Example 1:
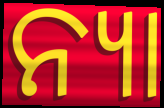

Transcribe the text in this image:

ନ୍ୟା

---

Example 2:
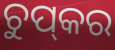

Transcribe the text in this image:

ଚୁପ୍‌କର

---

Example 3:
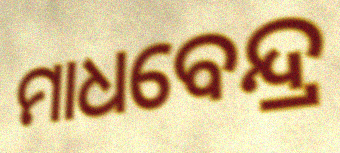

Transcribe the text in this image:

ମାଧବେନ୍ଦ୍ର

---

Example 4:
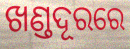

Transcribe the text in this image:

ଖଣ୍ଡଦୂରରେ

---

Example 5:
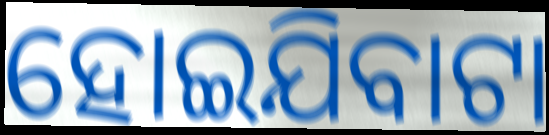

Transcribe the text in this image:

ହୋଇଯିବାଟା